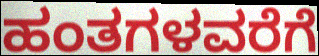
ಹಂತಗಳವರೆಗೆ